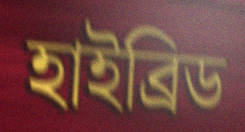
হাইব্রিড